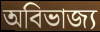
অবিভাজ্য